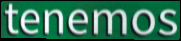
tenemos